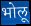
भोलू